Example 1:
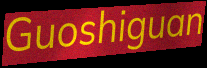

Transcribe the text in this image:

Guoshiguan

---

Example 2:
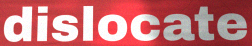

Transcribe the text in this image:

dislocate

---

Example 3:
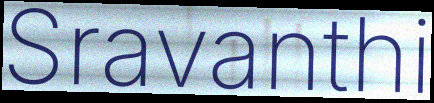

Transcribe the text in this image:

Sravanthi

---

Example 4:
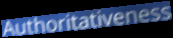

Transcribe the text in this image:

Authoritativeness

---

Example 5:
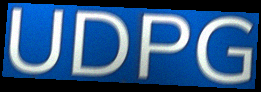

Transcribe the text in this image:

UDPG